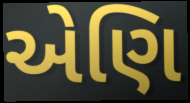
એણિ